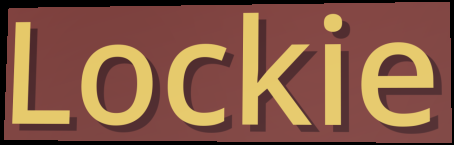
Lockie